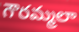
గౌరమ్మలా